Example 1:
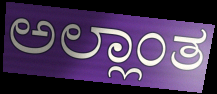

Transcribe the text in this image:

ಅಲ್ಲಾಂತ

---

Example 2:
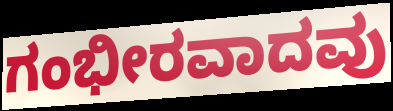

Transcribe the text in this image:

ಗಂಭೀರವಾದವು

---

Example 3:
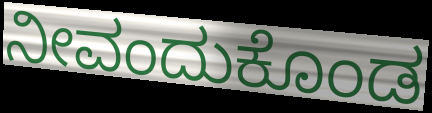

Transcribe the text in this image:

ನೀವಂದುಕೊಂಡ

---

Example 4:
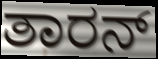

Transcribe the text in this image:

ತಾರನ್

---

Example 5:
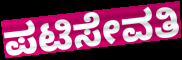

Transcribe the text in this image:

ಪಟಿಸೇವತಿ